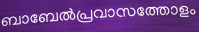
ബാബേൽപ്രവാസത്തോളം